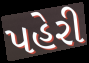
પહેરી